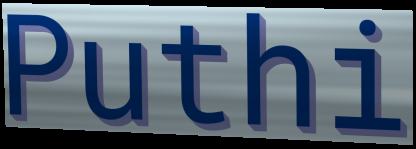
Puthi